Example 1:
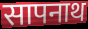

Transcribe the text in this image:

सापनाथ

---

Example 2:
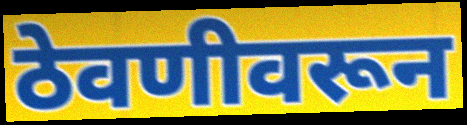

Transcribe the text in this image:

ठेवणीवरून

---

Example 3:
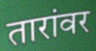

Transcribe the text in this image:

तारांवर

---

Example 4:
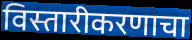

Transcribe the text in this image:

विस्तारीकरणाचा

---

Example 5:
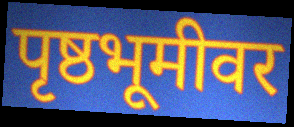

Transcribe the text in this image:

पृष्ठभूमीवर